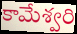
కామేశ్వరి